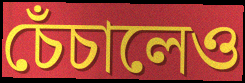
চেঁচালেও